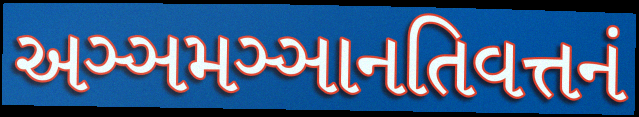
અઞ્ઞમઞ્ઞાનતિવત્તનં